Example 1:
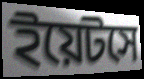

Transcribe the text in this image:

ইয়েটসে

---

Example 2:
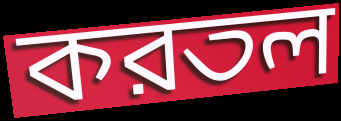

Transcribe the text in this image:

করতল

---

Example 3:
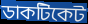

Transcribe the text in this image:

ডাকটিকেট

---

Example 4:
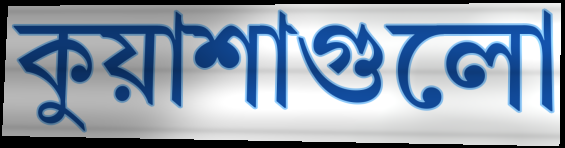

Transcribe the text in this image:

কুয়াশাগুলো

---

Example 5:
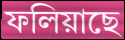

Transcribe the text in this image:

ফলিয়াছে